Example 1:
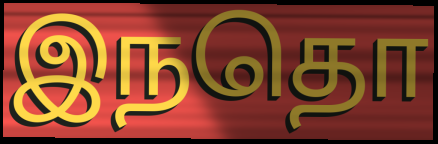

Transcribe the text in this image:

இநதொ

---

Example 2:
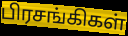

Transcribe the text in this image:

பிரசங்கிகள்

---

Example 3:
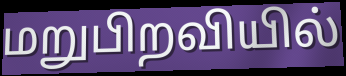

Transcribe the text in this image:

மறுபிறவியில்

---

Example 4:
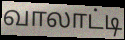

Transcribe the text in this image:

வாலாட்டி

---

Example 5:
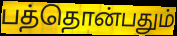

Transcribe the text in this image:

பத்தொன்பதும்